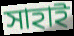
সাহাই